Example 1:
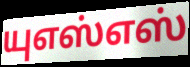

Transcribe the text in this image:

யுஎஸ்எஸ்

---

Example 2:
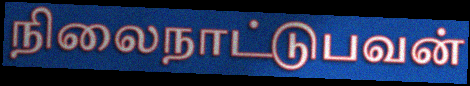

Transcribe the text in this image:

நிலைநாட்டுபவன்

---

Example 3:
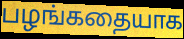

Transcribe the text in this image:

பழங்கதையாக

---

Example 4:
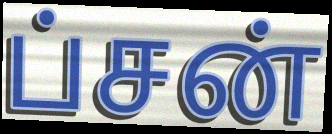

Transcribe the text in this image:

ப்சன்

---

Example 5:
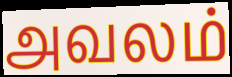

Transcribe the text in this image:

அவலம்